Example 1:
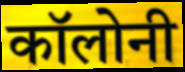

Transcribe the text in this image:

कॉलोनी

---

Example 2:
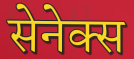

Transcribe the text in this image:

सेनेक्स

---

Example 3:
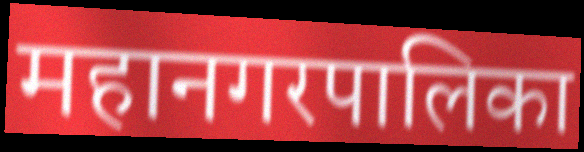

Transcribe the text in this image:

महानगरपालिका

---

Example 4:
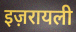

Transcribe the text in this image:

इज़रायली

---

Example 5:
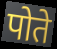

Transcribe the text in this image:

पोते